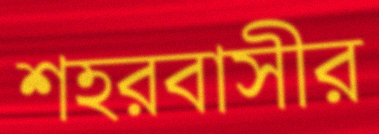
শহরবাসীর